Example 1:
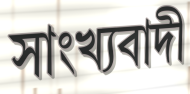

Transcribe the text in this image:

সাংখ্যবাদী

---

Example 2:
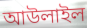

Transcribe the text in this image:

আউলাইল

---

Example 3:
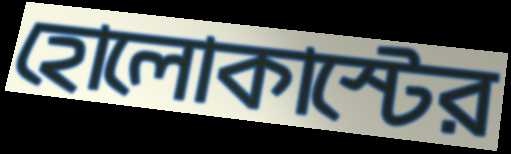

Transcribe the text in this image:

হোলোকাস্টের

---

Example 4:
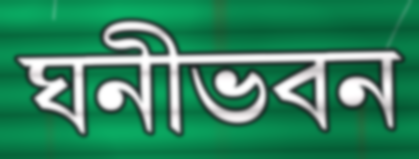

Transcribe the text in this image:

ঘনীভবন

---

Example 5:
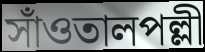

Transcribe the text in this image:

সাঁওতালপল্লী